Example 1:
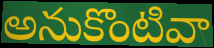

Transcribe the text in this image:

అనుకొంటివా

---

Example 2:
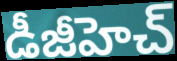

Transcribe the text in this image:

డీజీహెచ్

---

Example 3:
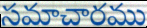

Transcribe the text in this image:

సమాచారము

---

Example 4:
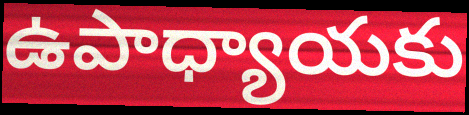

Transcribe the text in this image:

ఉపాధ్యాయకు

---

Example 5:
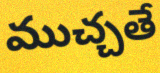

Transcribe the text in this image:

ముచ్చతే